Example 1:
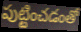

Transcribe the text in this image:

పుట్టించడంతో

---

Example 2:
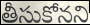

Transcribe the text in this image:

తీసుకోనని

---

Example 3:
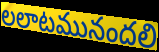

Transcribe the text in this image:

లలాటమునందలి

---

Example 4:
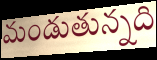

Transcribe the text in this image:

మండుతున్నది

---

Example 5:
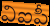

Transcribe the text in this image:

విఐపీ